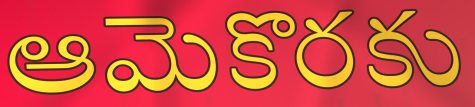
ఆమెకొరకు